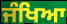
ਜੰਖਿਆ